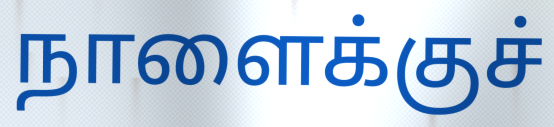
நாளைக்குச்